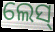
ଲେସ୍